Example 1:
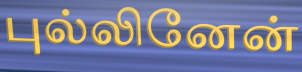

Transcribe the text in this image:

புல்லினேன்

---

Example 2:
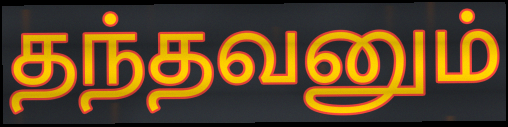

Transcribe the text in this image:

தந்தவனும்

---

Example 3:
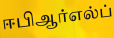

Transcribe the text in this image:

ஈபிஆர்எல்ப்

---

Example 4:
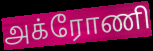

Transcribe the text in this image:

அக்ரோணி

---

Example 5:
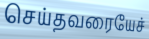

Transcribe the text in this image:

செய்தவரையேச்